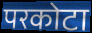
परकोटा